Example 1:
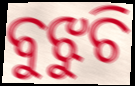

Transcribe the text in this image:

ବୁଝୁଚି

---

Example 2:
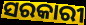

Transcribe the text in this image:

ସରକାରୀ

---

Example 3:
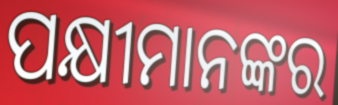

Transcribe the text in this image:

ପକ୍ଷୀମାନଙ୍କର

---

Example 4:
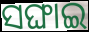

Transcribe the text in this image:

ସଙ୍ଘାଇ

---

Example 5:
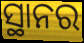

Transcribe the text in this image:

ସ୍ଥାନର